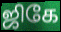
ஜிகே